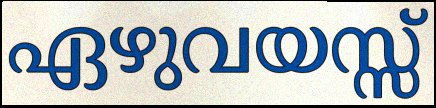
ഏഴുവയസ്സ്